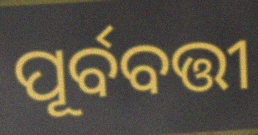
ପୂର୍ବବତ୍ତୀ